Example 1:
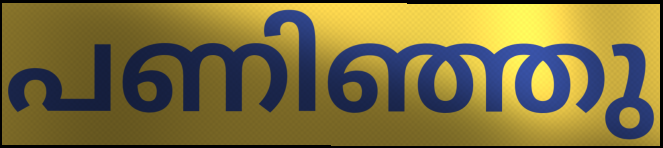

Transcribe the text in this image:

പണിഞ്ഞു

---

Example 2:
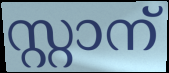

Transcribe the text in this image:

സ്റ്റാന്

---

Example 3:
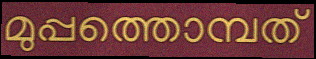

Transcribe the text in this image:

മുപ്പത്തൊമ്പത്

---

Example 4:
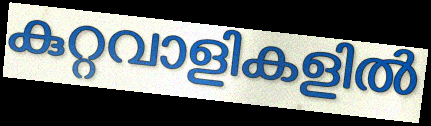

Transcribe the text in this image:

കുറ്റവാളികളിൽ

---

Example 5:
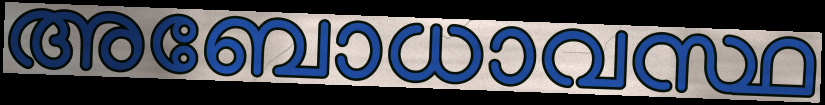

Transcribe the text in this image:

അബോധാവസ്ഥ